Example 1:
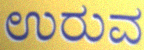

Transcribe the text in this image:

ಉರುವ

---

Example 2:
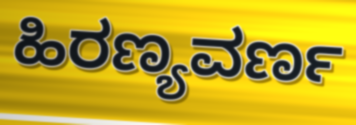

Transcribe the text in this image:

ಹಿರಣ್ಯವರ್ಣ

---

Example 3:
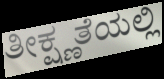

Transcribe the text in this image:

ತೀಕ್ಷ್ಣತೆಯಲ್ಲಿ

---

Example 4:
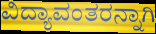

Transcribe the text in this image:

ವಿದ್ಯಾವಂತರನ್ನಾಗಿ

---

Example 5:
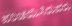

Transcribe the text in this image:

ಪರಿಚಯಿಸಿರುವರು